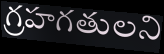
గ్రహగతులని